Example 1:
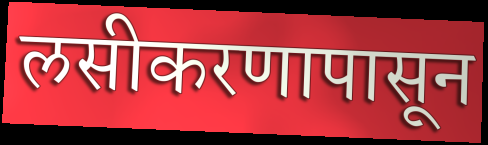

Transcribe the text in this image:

लसीकरणापासून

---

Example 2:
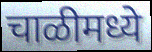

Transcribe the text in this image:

चाळीमध्ये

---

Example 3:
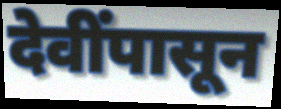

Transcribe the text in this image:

देवींपासून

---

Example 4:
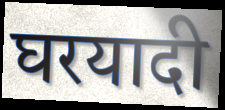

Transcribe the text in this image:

घरयादी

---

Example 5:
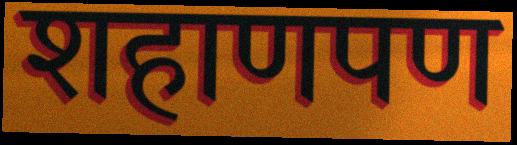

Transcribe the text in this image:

शहाणपण